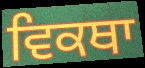
ਵਿਕਥਾ